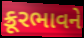
ક્રૂરભાવને